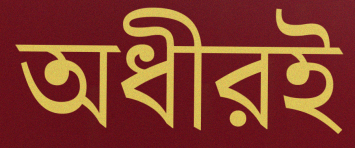
অধীরই